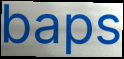
baps